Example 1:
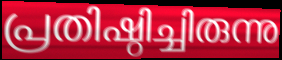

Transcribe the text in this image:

പ്രതിഷ്ഠിച്ചിരുന്നു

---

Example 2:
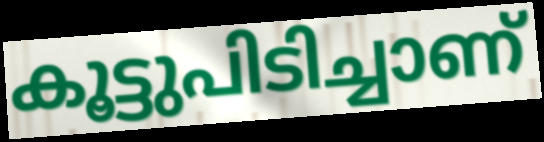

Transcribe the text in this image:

കൂട്ടുപിടിച്ചാണ്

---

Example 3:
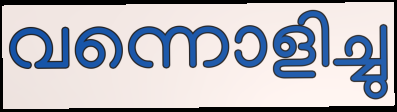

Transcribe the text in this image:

വന്നൊളിച്ചു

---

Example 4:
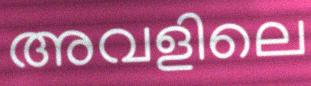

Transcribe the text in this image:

അവളിലെ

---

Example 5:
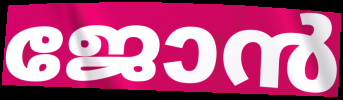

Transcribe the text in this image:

ജോൻ